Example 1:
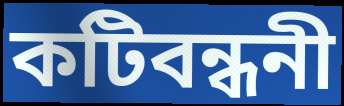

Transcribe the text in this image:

কটিবন্ধনী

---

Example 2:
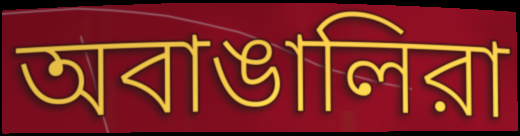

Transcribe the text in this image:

অবাঙালিরা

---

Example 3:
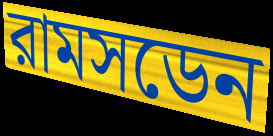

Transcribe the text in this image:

রামসডেন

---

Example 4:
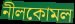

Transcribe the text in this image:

নীলকোমল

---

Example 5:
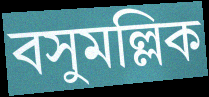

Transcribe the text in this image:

বসুমল্লিক